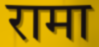
रामा